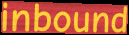
inbound